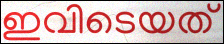
ഇവിടെയത്